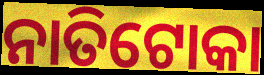
ନାତିଟୋକା